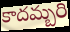
కాదమ్బరి